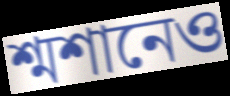
শ্মশানেও